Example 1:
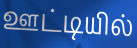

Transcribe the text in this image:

ஊட்டியில்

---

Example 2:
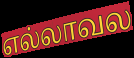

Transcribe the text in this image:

எல்லாவல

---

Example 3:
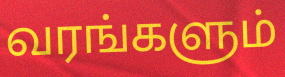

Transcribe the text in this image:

வரங்களும்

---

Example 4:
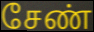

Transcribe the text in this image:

சேண்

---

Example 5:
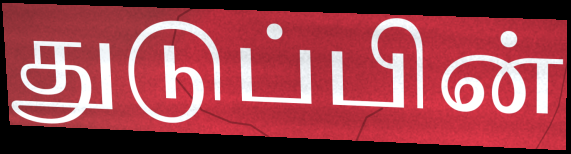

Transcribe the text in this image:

துடுப்பின்